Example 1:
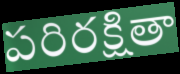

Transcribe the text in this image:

పరిరక్షితా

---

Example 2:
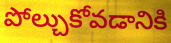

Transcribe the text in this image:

పోల్చుకోవడానికి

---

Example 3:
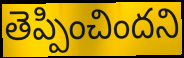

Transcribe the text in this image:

తెప్పించిందని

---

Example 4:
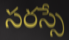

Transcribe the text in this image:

సరస్సే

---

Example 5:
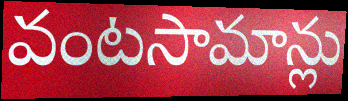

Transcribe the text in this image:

వంటసామాన్లు